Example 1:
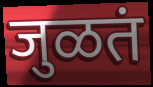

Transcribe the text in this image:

जुळतं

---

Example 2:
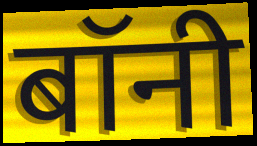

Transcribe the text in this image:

बॉनी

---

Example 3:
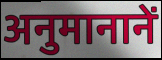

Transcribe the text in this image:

अनुमानानें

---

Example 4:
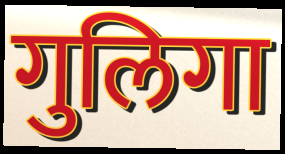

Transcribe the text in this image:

गुलिगा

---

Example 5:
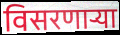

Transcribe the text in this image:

विसरणाऱ्या